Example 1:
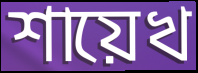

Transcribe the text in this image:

শায়েখ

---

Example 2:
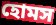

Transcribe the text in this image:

হোমস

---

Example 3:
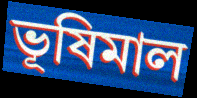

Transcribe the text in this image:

ভূষিমাল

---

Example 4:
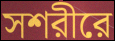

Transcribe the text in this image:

সশরীরে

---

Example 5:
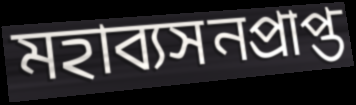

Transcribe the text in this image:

মহাব্যসনপ্রাপ্ত